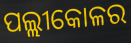
ପଲ୍ଲୀକୋଳର